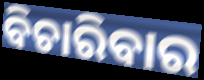
ବିଚାରିବାର